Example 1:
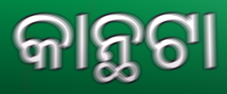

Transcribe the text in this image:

କାନ୍ଥଟା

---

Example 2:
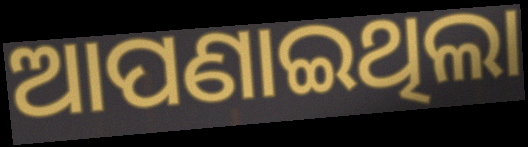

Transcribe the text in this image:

ଆପଣାଇଥିଲା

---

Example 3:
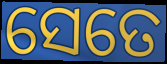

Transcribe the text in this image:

ସେତେ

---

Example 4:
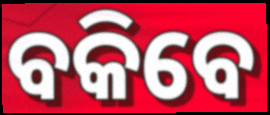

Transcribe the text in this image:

ବକିବେ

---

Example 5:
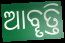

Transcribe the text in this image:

ଆବୄତ୍ତି